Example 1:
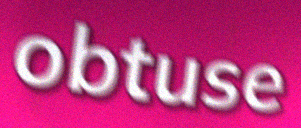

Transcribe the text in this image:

obtuse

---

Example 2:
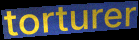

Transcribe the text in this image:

torturer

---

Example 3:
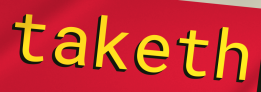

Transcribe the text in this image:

taketh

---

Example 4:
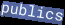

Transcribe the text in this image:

publics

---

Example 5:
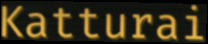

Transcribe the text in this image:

Katturai